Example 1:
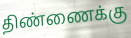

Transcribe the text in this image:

திண்ணைக்கு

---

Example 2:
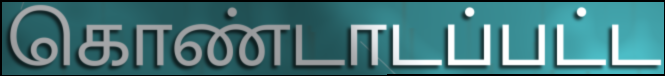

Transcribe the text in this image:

கொண்டாடப்பட்ட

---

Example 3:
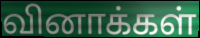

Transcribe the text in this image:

வினாக்கள்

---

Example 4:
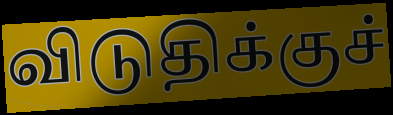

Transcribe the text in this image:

விடுதிக்குச்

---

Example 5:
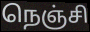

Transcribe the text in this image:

நெஞ்சி